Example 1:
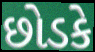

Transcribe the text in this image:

છોડકે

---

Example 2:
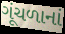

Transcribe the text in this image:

ગૂંચળાનાં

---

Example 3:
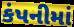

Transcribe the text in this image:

કંપનીમાં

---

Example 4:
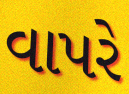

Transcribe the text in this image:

વાપરે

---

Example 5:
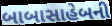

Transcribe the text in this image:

બાબાસાહેબની